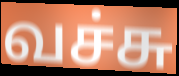
வச்சு